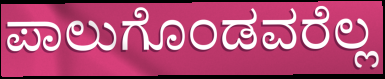
ಪಾಲುಗೊಂಡವರೆಲ್ಲ